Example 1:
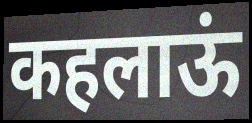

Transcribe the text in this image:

कहलाऊं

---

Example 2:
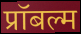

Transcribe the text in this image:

प्रॉबल्म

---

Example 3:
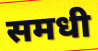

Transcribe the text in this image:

समधी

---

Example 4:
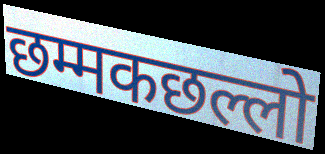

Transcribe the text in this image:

छम्मकछल्लो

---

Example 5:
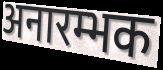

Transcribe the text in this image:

अनारम्भक